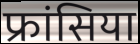
फ्रांसिया